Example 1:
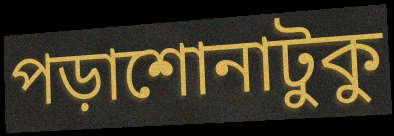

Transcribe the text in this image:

পড়াশোনাটুকু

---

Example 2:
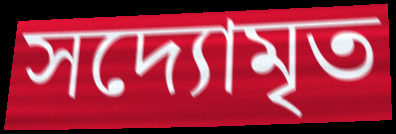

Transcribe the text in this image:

সদ্যোমৃত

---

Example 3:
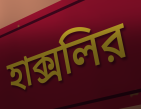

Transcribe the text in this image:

হাক্সলির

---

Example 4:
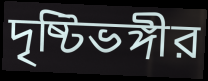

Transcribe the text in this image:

দৃষ্টিভঙ্গীর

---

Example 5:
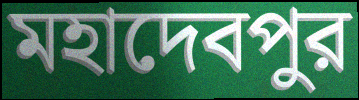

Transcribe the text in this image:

মহাদেবপুর